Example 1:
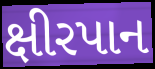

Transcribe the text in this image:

ક્ષીરપાન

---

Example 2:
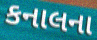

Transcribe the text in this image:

કનાલના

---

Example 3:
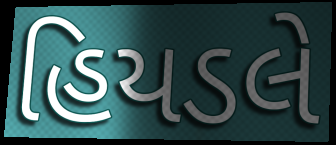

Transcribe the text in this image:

હિયડલે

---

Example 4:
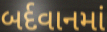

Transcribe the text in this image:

બર્દવાનમાં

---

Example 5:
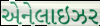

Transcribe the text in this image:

એનેલાઇઝર